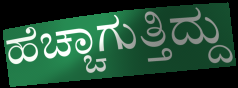
ಹೆಚ್ಚಾಗುತ್ತಿದ್ದು